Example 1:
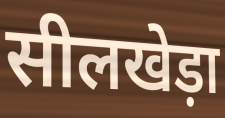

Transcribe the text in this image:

सीलखेड़ा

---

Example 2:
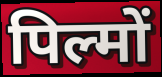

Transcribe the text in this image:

पिल्मों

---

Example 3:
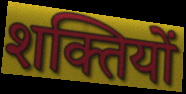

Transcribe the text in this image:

शक्तियों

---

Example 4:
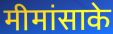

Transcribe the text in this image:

मीमांसाके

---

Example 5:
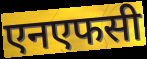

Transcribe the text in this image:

एनएफसी